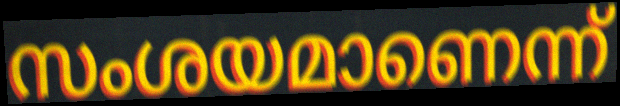
സംശയമാണെന്ന്